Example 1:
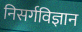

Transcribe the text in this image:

निसर्गविज्ञान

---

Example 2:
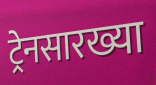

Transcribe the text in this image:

ट्रेनसारख्या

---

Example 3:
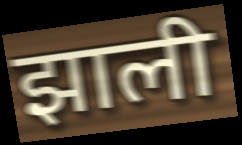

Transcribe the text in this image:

झाली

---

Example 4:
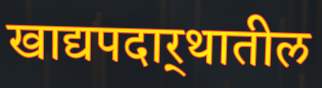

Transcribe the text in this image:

खाद्यपदार्थातील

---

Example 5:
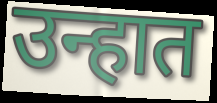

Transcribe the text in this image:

उन्हात